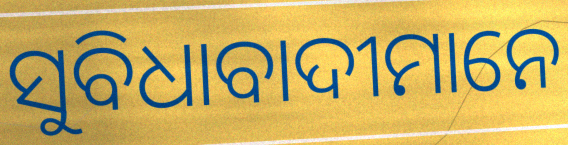
ସୁବିଧାବାଦୀମାନେ